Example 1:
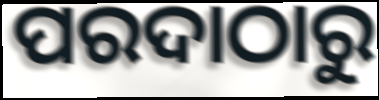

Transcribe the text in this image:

ପରଦାଠାରୁ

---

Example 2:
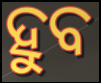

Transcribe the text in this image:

ହୁବ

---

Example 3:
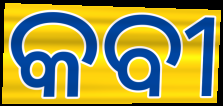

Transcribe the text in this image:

କବୀ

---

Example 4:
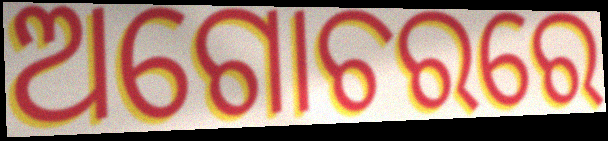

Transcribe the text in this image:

ଅଗୋଚରରେ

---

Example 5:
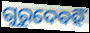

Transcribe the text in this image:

ଗୁରୁଦେବହିଁ